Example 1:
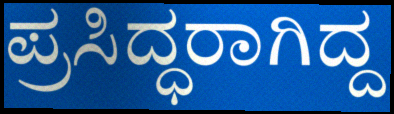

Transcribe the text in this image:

ಪ್ರಸಿದ್ಧರಾಗಿದ್ದ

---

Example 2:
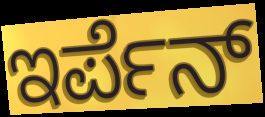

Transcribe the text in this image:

ಇರ್ಪೆನ್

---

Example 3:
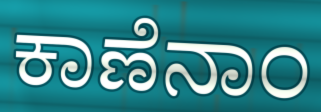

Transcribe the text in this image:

ಕಾಣೆನಾಂ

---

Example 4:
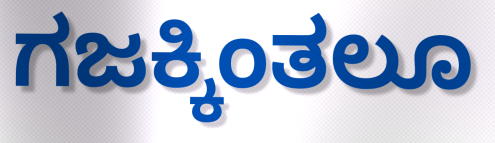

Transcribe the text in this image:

ಗಜಕ್ಕಿಂತಲೂ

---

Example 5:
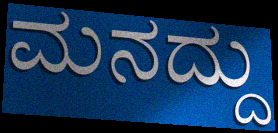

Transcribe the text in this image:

ಮನದ್ದು